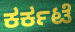
ಕರ್ಕಟೆ